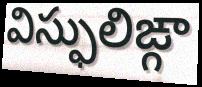
విస్ఫులిఙ్గా